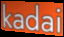
kadai